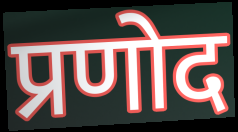
प्रणोद